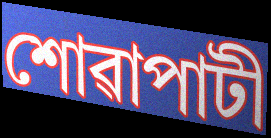
শোৱাপাটী